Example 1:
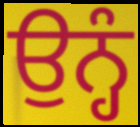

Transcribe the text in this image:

ਉਨ੍ਹੰ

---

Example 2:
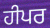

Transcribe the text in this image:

ਹੀਪਰ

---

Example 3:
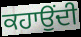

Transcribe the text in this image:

ਕਹਾਉਂਦੀ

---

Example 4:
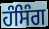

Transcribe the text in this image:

ਹੰਸਿੰਗ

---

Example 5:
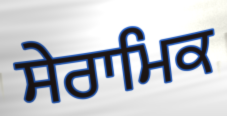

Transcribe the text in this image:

ਸੇਰਾਮਿਕ